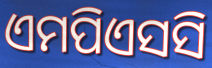
ଏମପିଏସସି